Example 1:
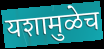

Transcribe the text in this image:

यशामुळेच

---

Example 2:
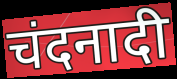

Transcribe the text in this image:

चंदनादी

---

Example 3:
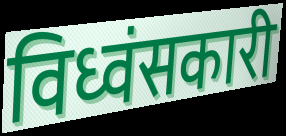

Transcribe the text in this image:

विध्वंसकारी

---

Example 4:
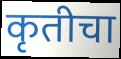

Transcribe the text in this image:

कृतीचा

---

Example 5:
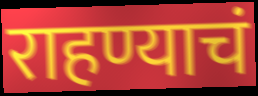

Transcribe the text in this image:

राहण्याचं